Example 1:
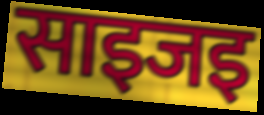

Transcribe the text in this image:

साइजइ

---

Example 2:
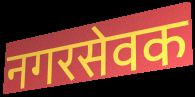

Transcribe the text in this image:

नगरसेवक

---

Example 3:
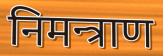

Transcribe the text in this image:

निमन्त्राण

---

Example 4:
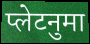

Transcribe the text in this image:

प्लेटनुमा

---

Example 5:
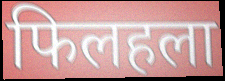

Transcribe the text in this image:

फिलहला